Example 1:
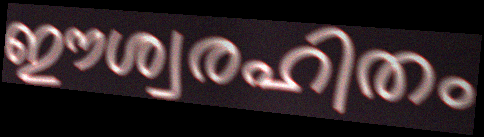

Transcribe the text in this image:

ഈശ്വരഹിതം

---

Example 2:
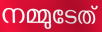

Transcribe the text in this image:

നമ്മുടേത്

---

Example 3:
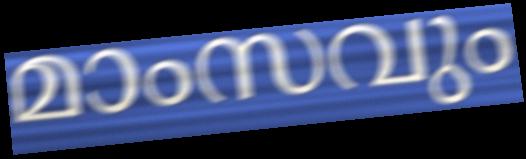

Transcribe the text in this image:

മാംസവും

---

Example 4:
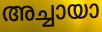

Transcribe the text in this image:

അച്ചായാ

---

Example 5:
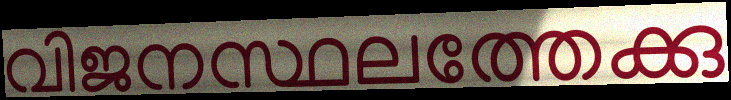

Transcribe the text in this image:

വിജനസ്ഥലത്തേക്കു